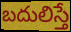
బదులిస్తే